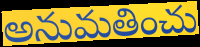
అనుమతించు